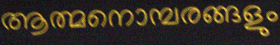
ആത്മനൊമ്പരങ്ങളും